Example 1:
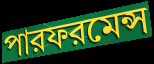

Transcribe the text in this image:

পারফরমেন্স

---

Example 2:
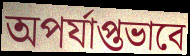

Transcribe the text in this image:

অপর্যাপ্তভাবে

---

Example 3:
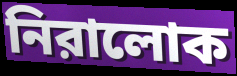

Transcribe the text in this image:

নিরালোক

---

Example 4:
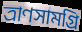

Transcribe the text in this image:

ত্রাণসামগ্রি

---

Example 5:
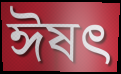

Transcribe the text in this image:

ঈষত্‍